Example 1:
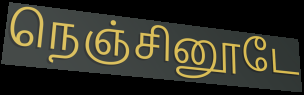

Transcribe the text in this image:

நெஞ்சினூடே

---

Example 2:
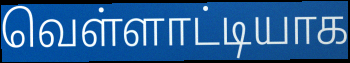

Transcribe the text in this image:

வெள்ளாட்டியாக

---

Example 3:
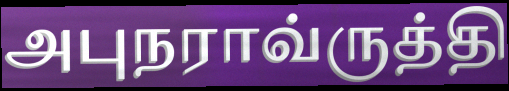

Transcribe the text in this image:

அபுநராவ்ருத்தி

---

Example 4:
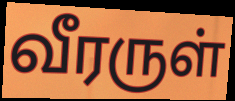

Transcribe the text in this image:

வீரருள்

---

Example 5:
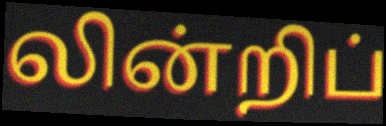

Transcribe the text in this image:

லின்றிப்